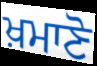
ਖ਼ਮਾਣੋ